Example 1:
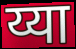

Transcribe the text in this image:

य्या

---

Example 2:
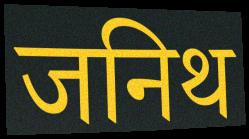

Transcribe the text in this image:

जनिथ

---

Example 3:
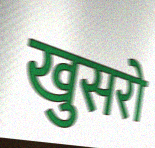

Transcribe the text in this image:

खुसरो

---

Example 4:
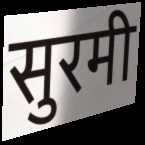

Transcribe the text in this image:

सुरमी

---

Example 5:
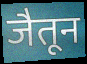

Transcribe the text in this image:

जैतून